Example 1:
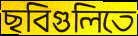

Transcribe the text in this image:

ছবিগুলিতে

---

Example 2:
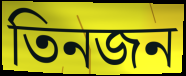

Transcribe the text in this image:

তিনজন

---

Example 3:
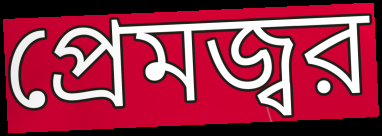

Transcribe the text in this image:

প্রেমজ্বর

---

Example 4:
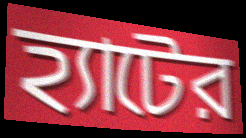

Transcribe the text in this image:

হ্যাটের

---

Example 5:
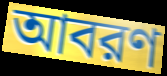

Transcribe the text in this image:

আবরণ